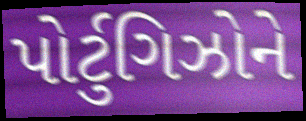
પોર્ટુગિઝોને